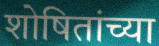
शोषितांच्या